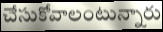
చేసుకోవాలంటున్నారు